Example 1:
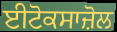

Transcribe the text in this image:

ਈਟੋਕਸਾਜ਼ੋਲ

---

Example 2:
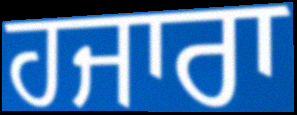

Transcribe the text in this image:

ਹਜਾਰਾ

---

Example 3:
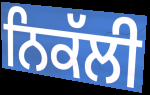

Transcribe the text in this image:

ਨਿਕੱਲੀ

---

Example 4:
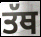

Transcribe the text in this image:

ਤੱਥ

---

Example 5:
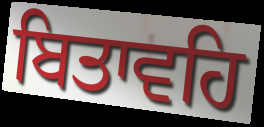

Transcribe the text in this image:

ਬਿਤਾਵਹਿ